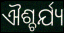
ଐଶ୍ଚର୍ଯ୍ୟ